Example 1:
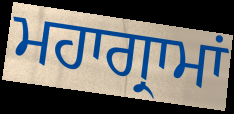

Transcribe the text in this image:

ਮਹਾਗ੍ਰਾਮਾਂ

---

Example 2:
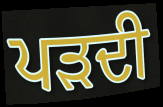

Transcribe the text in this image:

ਪੜਦੀ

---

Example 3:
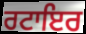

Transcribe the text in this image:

ਰਟਾਇਰ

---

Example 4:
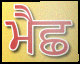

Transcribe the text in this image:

ਮੈਛ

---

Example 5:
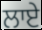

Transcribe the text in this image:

ਲਾਏ